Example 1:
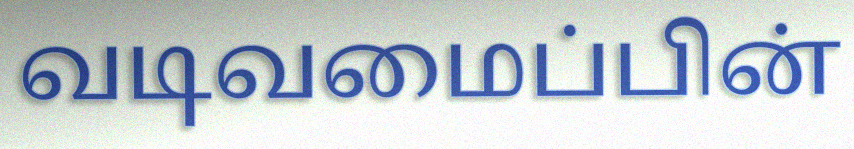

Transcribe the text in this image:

வடிவமைப்பின்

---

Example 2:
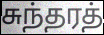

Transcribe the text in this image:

சுந்தரத்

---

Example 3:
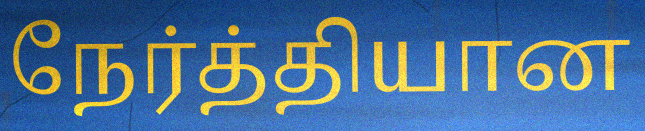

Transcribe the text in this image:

நேர்த்தியான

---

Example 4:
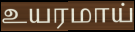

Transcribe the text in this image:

உயரமாய்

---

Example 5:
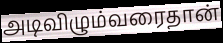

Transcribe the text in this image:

அடிவிழும்வரைதான்